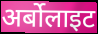
अर्बोलाइट